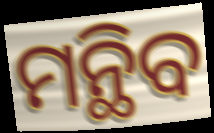
ମନ୍ଥିବ